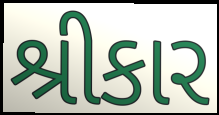
શ્રીકાર